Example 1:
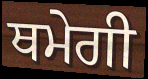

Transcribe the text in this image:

ਥਮੇਗੀ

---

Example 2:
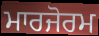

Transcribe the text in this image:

ਮਾਰਜੋਰਮ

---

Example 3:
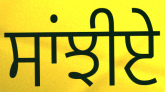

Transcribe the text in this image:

ਸਾਂਝੀਏ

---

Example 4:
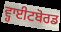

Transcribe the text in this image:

ਵ੍ਹਾਈਟਬੋਰਡ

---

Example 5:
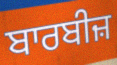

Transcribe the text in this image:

ਬਾਰਬੀਜ਼